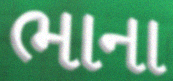
ભાના